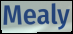
Mealy